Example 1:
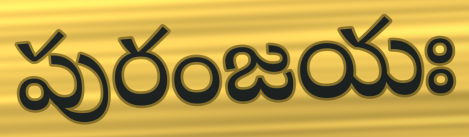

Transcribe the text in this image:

పురంజయః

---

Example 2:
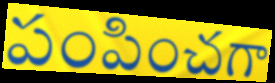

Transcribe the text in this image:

పంపించగా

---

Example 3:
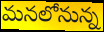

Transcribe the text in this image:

మనలోనున్న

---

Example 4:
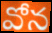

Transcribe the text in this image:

వోన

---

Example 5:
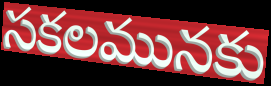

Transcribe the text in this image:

సకలమునకు